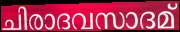
ചിരാദവസാദമ്